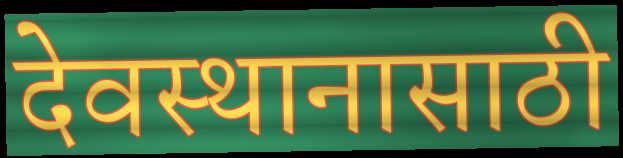
देवस्थानासाठी